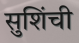
सुशिंची